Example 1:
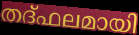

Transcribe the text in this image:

തദ്ഫലമായി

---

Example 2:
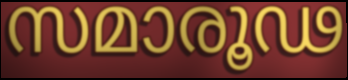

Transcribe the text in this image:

സമാരൂഢ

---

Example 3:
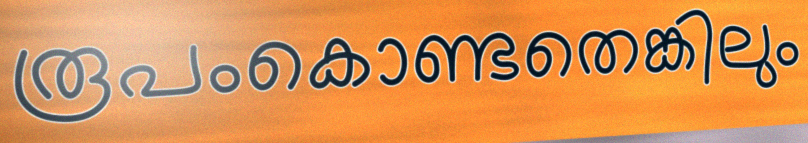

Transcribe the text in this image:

രൂപംകൊണ്ടതെങ്കിലും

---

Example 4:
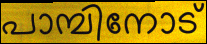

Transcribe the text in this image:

പാമ്പിനോട്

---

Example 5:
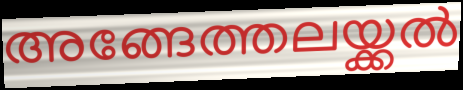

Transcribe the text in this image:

അങ്ങേത്തലയ്ക്കൽ